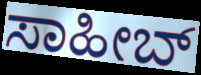
ಸಾಹೀಬ್